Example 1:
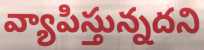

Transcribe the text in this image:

వ్యాపిస్తున్నదని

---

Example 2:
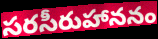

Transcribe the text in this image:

సరసీరుహాననం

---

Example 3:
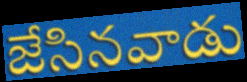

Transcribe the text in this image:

జేసినవాడు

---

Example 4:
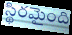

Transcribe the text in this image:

స్థిరమైంది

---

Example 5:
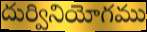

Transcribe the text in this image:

దుర్వినియోగము